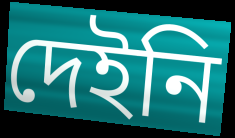
দেইনি